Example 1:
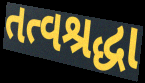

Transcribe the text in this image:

તત્વશ્રદ્ધા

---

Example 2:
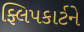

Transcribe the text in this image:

ફ્લિપકાર્ટને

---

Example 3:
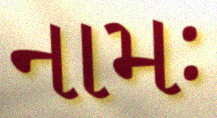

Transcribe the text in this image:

નામઃ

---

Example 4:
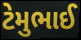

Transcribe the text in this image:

ટેમુભાઈ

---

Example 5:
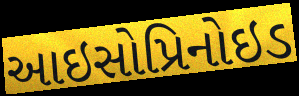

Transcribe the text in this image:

આઇસોપ્રિનોઇડ